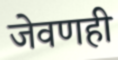
जेवणही